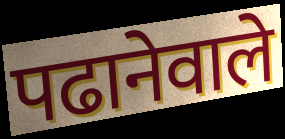
पढानेवाले